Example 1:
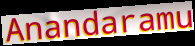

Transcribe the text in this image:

Anandaramu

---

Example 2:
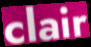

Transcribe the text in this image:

clair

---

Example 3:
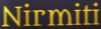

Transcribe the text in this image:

Nirmiti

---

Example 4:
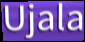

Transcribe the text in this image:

Ujala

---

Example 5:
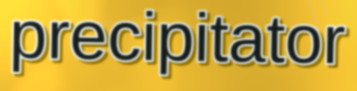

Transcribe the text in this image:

precipitator